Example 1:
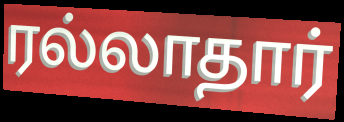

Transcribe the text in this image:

ரல்லாதார்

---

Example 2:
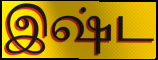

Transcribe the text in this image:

இஷ்ட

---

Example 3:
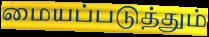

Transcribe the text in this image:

மையப்படுத்தும்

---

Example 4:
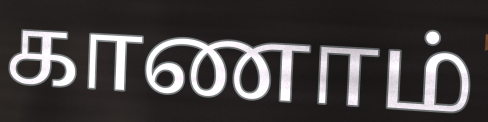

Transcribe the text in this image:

காணாம்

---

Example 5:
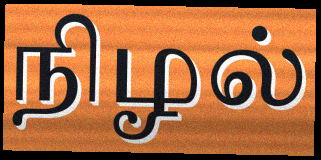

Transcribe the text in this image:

நிழல்